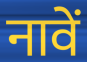
नावें